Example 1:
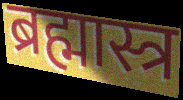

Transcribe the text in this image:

ब्रह्मास्त्र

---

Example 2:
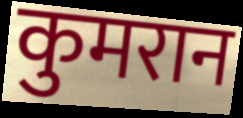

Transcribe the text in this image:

कुमरान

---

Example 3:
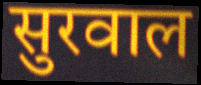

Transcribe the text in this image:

सुरवाल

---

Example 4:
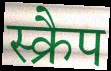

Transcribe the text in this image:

स्क्रैप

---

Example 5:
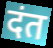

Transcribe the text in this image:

दंत